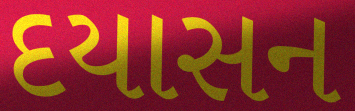
દયાસન